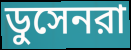
ডুসেনরা